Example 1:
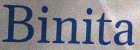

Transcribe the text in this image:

Binita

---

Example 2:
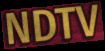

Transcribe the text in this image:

NDTV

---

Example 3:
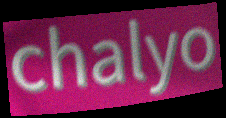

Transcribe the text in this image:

chalyo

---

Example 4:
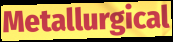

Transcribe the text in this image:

Metallurgical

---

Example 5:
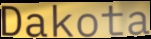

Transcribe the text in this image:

Dakota